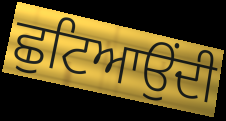
ਛੁਟਿਆਉਂਦੀ